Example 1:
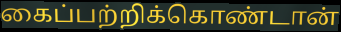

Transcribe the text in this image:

கைப்பற்றிக்கொண்டான்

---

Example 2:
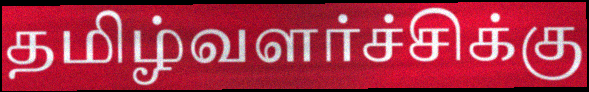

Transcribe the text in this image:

தமிழ்வளர்ச்சிக்கு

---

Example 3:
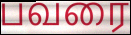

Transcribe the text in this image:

பவரை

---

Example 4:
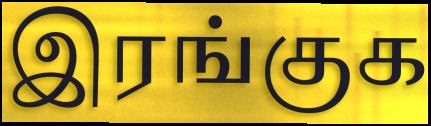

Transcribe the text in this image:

இரங்குக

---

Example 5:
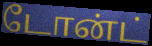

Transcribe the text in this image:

டோன்ட்